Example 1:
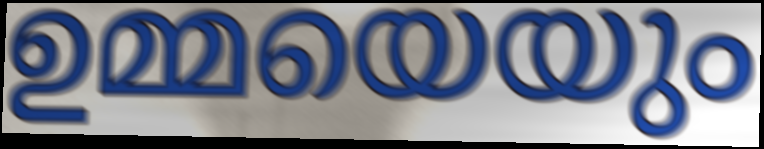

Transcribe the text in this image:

ഉമ്മയെയും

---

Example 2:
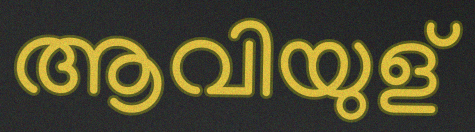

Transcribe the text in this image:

ആവിയുള്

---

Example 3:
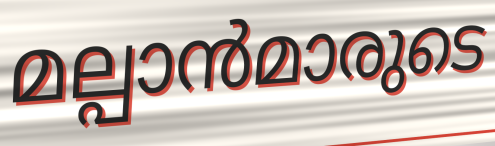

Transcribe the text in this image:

മല്പാൻമാരുടെ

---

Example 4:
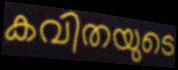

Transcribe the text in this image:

കവിതയുടെ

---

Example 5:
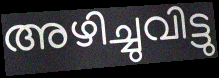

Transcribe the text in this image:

അഴിച്ചുവിട്ടു